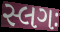
સ્લગઃ